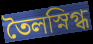
তৈলস্নিগ্ধ